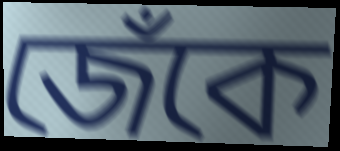
জেঁকে